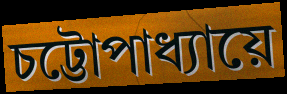
চট্টোপাধ্যায়ে